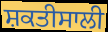
ਸ਼ਕਤੀਸਾਲੀ